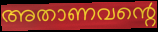
അതാണവന്റെ